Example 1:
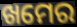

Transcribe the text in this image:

ଖମେର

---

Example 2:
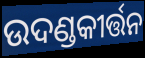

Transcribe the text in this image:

ଉଦଣ୍ଡକୀର୍ତ୍ତନ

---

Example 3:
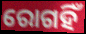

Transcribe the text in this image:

ରୋଗହିଁ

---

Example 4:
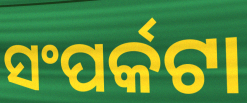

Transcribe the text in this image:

ସଂପର୍କଟା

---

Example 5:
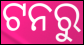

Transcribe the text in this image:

ଟନରୁ